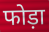
फोड़ा